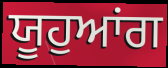
ਯੂਹੁਆਂਗ